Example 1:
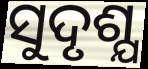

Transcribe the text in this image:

ସୁଦୃଶ୍ଯ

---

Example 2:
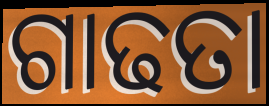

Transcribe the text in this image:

ଗାଢତା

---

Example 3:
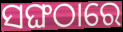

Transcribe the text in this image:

ସଙ୍ଘଠାରେ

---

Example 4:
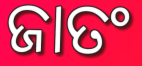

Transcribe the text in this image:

ଜାତଂ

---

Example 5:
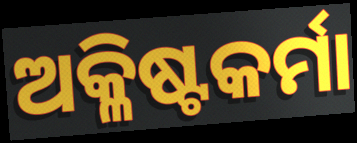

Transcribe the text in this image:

ଅକ୍ଳିଷ୍ଟକର୍ମା